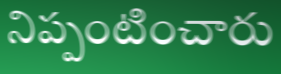
నిప్పంటించారు